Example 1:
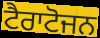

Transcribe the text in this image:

ਟੈਰਾਟੋਜਨ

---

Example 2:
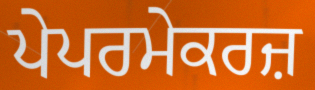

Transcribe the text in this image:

ਪੇਪਰਮੇਕਰਜ਼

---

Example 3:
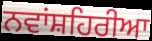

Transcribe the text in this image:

ਨਵਾਂਸ਼ਹਿਰੀਆ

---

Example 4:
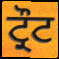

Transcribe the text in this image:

ਟ੍ਰੌਟ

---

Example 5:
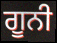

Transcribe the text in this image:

ਗੂਨੀ